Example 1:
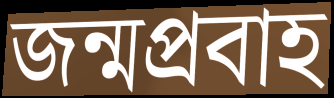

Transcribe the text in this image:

জন্মপ্রবাহ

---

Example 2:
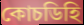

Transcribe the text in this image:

কোচডিহি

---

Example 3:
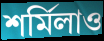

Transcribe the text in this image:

শর্মিলাও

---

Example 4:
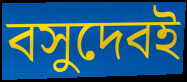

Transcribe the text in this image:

বসুদেবই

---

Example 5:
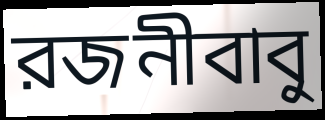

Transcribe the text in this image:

রজনীবাবু